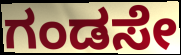
ಗಂಡಸೇ